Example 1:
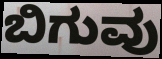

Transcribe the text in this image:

ಬಿಗುವು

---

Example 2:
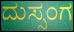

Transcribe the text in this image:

ದುಸ್ಸಂಗ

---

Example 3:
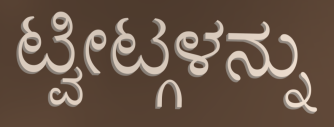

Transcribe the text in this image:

ಟ್ವೀಟ್ಗಳನ್ನು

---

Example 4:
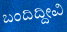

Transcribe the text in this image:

ಬಂದಿದ್ದೀವಿ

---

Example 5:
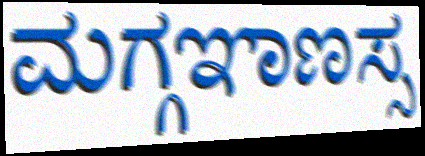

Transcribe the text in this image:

ಮಗ್ಗಞಾಣಸ್ಸ